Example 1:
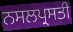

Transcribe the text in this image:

ਨਸਲਪ੍ਰਸਤੀ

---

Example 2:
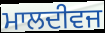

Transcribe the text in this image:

ਮਾਲਦੀਵਜ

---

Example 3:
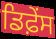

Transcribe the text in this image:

ਡਿਫ਼ੇੰਸ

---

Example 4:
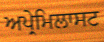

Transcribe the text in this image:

ਅਪ੍ਰੇਮਿਲਾਸਟ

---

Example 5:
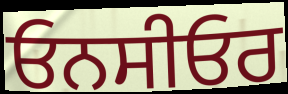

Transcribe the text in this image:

ਓਨਸੀਓਰ